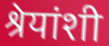
श्रेयांशी